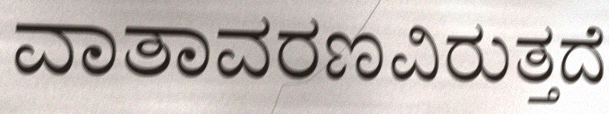
ವಾತಾವರಣವಿರುತ್ತದೆ